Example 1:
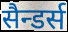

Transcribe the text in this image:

सैन्डर्स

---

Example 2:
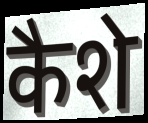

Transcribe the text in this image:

कैशे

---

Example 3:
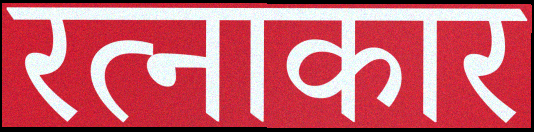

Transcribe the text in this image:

रत्नाकार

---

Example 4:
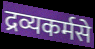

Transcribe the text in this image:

द्रव्यकर्मसे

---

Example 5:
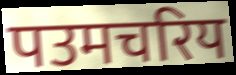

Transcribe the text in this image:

पउमचरिय